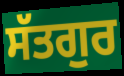
ਸੱਤਗੁਰ